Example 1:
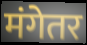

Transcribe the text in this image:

मंगेतर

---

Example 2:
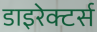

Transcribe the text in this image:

डाइरेक्टर्स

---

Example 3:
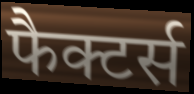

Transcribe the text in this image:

फैक्टर्स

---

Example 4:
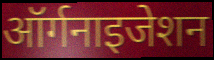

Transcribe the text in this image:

ऑर्गनाइजेशन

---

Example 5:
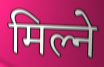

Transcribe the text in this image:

मिल्ने